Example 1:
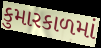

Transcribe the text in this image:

કુમારકાળમાં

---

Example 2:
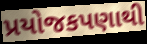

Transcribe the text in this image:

પ્રયોજકપણાથી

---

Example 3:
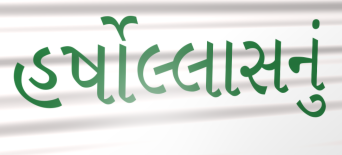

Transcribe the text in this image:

હર્ષોલ્લાસનું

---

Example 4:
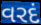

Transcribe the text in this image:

વરદં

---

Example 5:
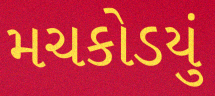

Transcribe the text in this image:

મચકોડયું